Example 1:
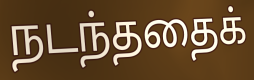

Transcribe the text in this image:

நடந்ததைக்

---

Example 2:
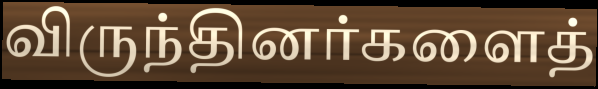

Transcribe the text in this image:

விருந்தினர்களைத்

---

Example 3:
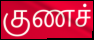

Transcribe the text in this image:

குணச்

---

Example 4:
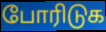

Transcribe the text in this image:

போரிடுக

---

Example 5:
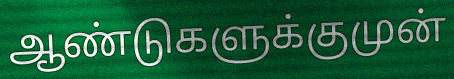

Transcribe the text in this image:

ஆண்டுகளுக்குமுன்